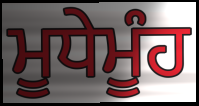
ਮੂਧੇਮੂੰਹ